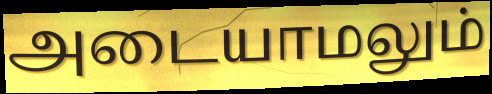
அடையாமலும்